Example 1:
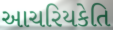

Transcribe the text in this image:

આચરિયકેતિ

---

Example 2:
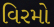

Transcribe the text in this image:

વિરમો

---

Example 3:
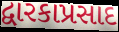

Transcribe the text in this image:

દ્વારકાપ્રસાદ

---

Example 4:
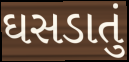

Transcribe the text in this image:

ઘસડાતું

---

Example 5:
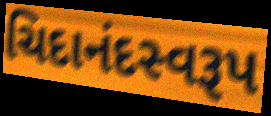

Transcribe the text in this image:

ચિદાનંદસ્વરૂપ